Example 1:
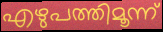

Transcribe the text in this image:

എഴുപത്തിമൂന്ന്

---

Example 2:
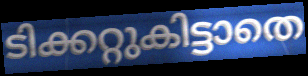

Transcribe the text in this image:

ടിക്കറ്റുകിട്ടാതെ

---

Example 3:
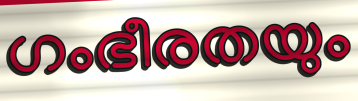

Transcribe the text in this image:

ഗംഭീരതയും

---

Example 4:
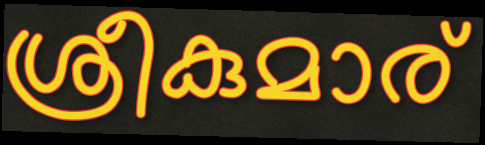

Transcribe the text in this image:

ശ്രീകുമാര്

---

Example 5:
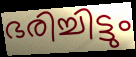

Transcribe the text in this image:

ഭരിച്ചിട്ടും